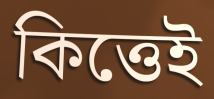
কিত্তেই